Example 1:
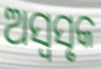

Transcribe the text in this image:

ଅସ୍ୱସୃକ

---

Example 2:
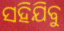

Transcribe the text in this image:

ସହିଯିବୁ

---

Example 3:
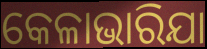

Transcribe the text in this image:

କେଳାଭାରିଯା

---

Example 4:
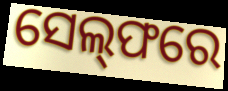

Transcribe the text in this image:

ସେଲ୍‌ଫରେ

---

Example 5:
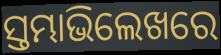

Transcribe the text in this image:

ସ୍ତମ୍ଭାଭିଲେଖରେ